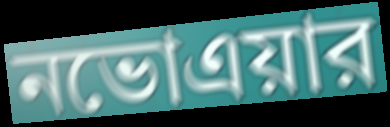
নভোএয়ার